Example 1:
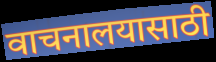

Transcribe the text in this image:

वाचनालयासाठी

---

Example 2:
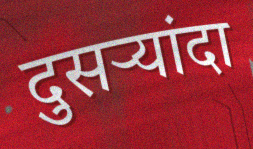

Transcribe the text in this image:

दुसर्‍यांदा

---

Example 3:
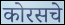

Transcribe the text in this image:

कोरसचे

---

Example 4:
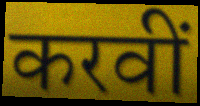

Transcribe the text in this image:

करवीं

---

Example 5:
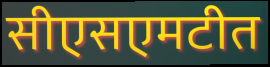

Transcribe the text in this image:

सीएसएमटीत